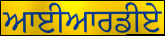
ਆਈਆਰਡੀਏ